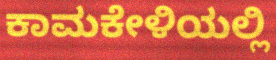
ಕಾಮಕೇಳಿಯಲ್ಲಿ